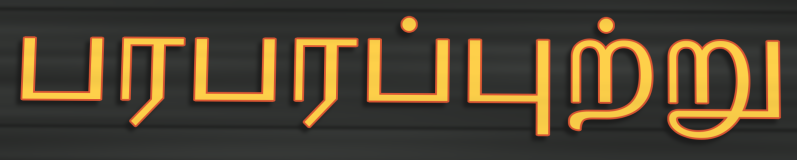
பரபரப்புற்று